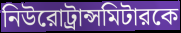
নিউরোট্রান্সমিটারকে